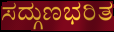
ಸದ್ಗುಣಭರಿತ